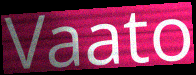
Vaato